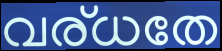
വര്ധതേ